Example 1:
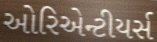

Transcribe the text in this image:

ઓરિએન્ટીયર્સ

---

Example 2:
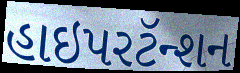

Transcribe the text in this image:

હાઇપરટૅન્શન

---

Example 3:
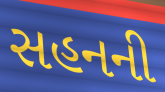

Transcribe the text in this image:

સહનની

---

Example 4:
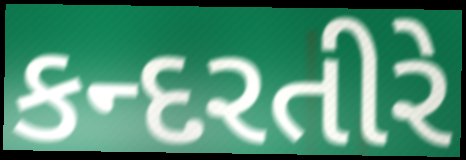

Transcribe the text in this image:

કન્દરતીરે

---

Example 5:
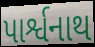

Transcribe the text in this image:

પાર્શ્વનાથ